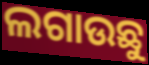
ଲଗାଉଛୁ